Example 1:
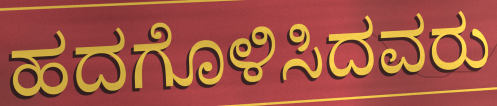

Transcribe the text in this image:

ಹದಗೊಳಿಸಿದವರು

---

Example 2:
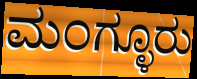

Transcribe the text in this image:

ಮಂಗ್ಳೂರು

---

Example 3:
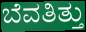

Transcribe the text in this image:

ಬೆವತಿತ್ತು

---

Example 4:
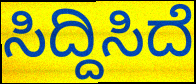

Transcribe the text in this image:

ಸಿದ್ದಿಸಿದೆ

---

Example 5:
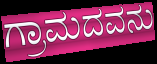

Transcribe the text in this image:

ಗ್ರಾಮದವನು